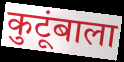
कुटूंबाला